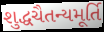
શુદ્ધચૈતન્યમૂર્તિ